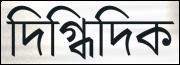
দিগ্ধিদিক